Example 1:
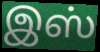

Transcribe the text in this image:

இஸ்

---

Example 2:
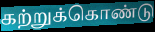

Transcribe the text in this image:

கற்றுக்கொண்டு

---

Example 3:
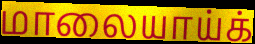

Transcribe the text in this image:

மாலையாய்க்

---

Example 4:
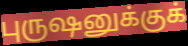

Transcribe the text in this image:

புருஷனுக்குக்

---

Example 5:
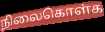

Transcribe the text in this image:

நிலைகொள்க